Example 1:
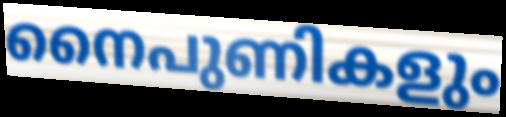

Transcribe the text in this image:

നൈപുണികളും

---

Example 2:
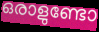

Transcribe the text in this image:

ഒരാളുണ്ടോ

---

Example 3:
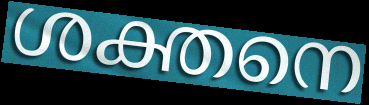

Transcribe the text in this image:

ശക്തനെ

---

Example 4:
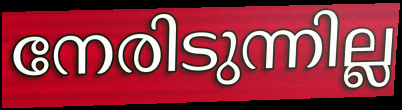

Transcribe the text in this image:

നേരിടുന്നില്ല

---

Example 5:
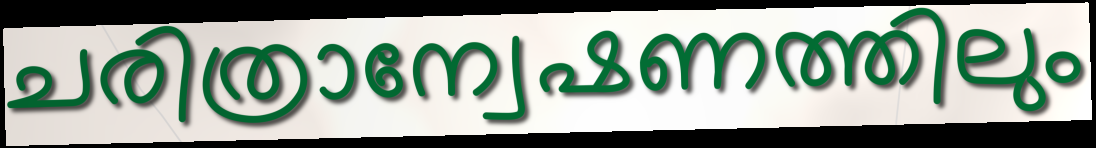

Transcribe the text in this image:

ചരിത്രാന്വേഷണത്തിലും